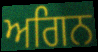
ਅਗਿਨ